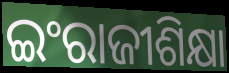
ଇଂରାଜୀଶିକ୍ଷା